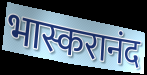
भास्करानंद